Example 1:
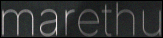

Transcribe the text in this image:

marethu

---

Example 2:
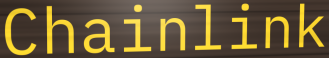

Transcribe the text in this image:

Chainlink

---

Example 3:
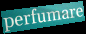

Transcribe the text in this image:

perfumare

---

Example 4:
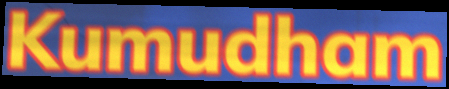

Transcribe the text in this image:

Kumudham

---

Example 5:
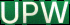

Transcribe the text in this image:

UPW